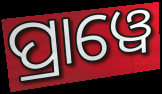
ପ୍ରାୱେ